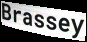
Brassey